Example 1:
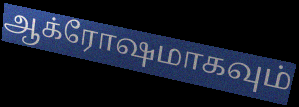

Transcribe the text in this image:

ஆக்ரோஷமாகவும்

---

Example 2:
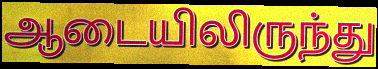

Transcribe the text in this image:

ஆடையிலிருந்து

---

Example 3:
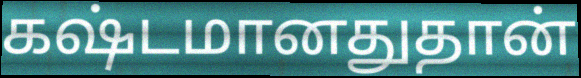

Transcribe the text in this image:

கஷ்டமானதுதான்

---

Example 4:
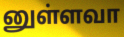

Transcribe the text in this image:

னுள்ளவா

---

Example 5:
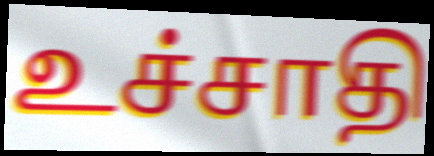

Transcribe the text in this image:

உச்சாதி